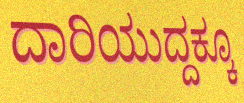
ದಾರಿಯುದ್ದಕ್ಕೂ